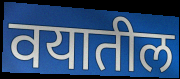
वयातील